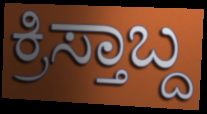
ಕ್ರಿಸ್ತಾಬ್ದ